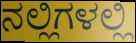
ನಲ್ಲಿಗಳಲ್ಲಿ